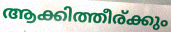
ആക്കിത്തീര്ക്കും